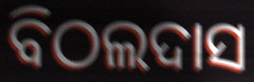
ବିଠଲଦାସ